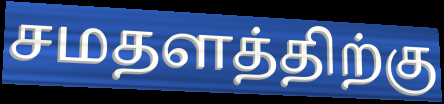
சமதளத்திற்கு